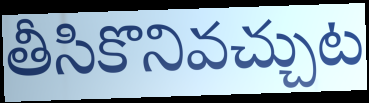
తీసికొనివచ్చుట